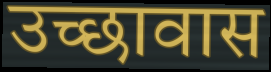
उच्छावास